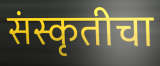
संस्कृतीचा